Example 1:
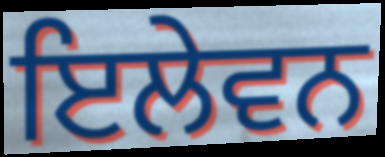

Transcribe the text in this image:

ਇਲੇਵਨ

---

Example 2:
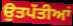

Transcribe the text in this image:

ਉਤਪੱਤੀਆਂ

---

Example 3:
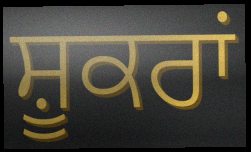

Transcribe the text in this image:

ਸ਼ੂਕਰਾਂ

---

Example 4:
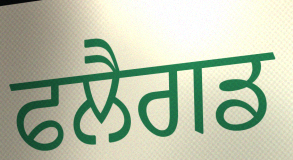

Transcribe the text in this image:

ਫਲੈਗਡ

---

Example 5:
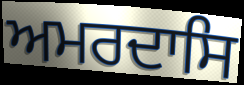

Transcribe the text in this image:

ਅਮਰਦਾਸਿ